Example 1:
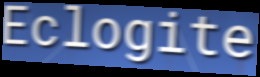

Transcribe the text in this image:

Eclogite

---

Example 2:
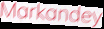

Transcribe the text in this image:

Markandey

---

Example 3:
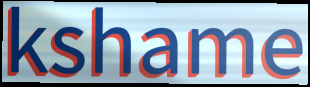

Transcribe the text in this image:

kshame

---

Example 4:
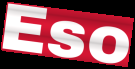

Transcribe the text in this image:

Eso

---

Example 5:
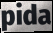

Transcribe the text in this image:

pida